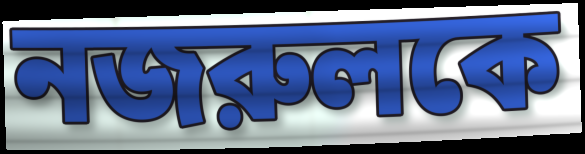
নজরুলকে